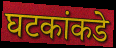
घटकांकडे